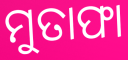
ମୁତାଫା